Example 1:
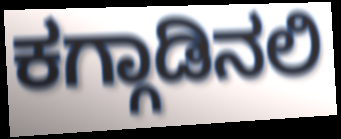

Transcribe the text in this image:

ಕಗ್ಗಾಡಿನಲಿ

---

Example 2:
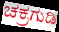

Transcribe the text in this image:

ಚಕ್ರಗುಡಿ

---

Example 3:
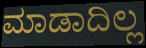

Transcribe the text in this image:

ಮಾಡಾದಿಲ್ಲ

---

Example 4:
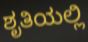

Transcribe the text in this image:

ಶೃತಿಯಲ್ಲಿ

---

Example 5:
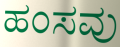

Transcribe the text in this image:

ಹಂಸವು